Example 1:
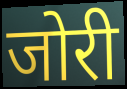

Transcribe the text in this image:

जोरी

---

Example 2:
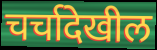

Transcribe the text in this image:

चर्चादेखील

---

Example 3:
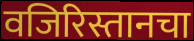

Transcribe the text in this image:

वजिरिस्तानचा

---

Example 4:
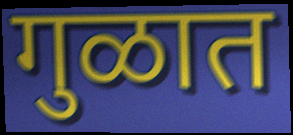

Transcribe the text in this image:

गुळात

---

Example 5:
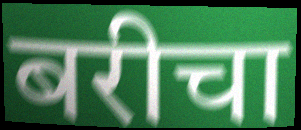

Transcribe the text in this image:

बरीचा